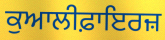
ਕੁਆਲੀਫ਼ਾਇਰਜ਼